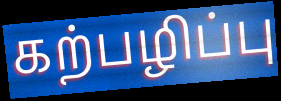
கற்பழிப்பு